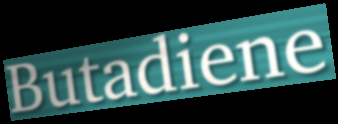
Butadiene